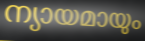
ന്യായമായും